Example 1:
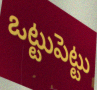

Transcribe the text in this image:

ఒట్టుపెట్టు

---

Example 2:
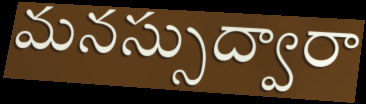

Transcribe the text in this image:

మనస్సుద్వారా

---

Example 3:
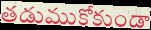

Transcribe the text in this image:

తడుముకోకుండా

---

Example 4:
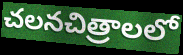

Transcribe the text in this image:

చలనచిత్రాలలో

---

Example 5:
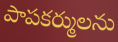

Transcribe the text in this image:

పాపకర్ములను